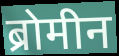
ब्रोमीन